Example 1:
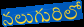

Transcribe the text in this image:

నలుగురిలో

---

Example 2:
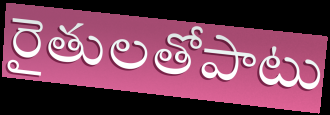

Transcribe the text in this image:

రైతులతోపాటు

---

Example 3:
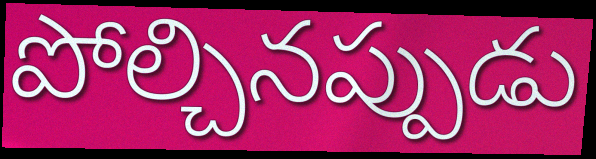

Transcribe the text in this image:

పోల్చినప్పుడు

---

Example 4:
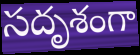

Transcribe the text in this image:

సదృశంగా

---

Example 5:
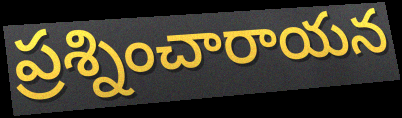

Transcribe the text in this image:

ప్రశ్నించారాయన